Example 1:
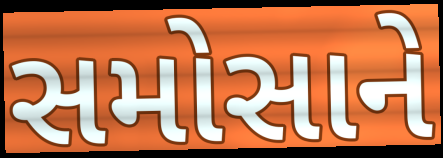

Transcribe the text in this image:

સમોસાને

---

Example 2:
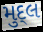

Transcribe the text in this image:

મુદ્લ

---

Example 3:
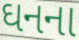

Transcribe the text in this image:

ઘનના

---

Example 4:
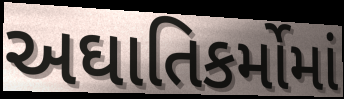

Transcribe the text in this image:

અઘાતિકર્મોમાં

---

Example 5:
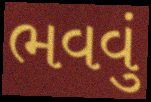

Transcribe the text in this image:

ભવવું